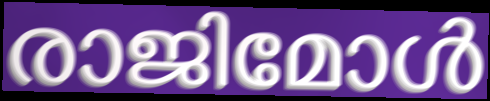
രാജിമോൾ